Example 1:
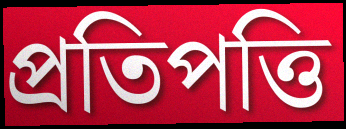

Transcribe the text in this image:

প্ৰতিপত্তি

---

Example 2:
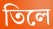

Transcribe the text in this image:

তিলে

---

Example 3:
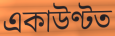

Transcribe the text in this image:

একাউণ্টত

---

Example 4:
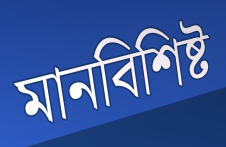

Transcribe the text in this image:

মানবিশিষ্ট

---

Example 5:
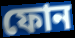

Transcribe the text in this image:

ফোন